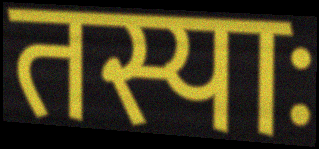
तस्याः